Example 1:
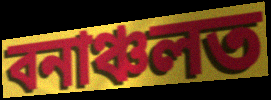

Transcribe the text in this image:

বনাঞ্চলত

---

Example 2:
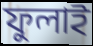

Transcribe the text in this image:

ফুলাই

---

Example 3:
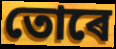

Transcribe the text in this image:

তোৰে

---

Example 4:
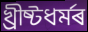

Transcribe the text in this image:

খ্ৰীষ্টধৰ্মৰ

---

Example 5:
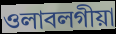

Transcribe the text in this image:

ওলাবলগীয়া